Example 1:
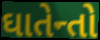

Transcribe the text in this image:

ઘાતેન્તો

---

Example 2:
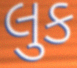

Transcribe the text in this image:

લુક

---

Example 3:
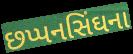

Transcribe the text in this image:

છપ્પનસિંઘના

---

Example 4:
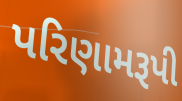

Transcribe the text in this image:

પરિણામરૂપી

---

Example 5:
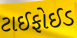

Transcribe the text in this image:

ટાઈફોઈડ